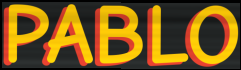
PABLO